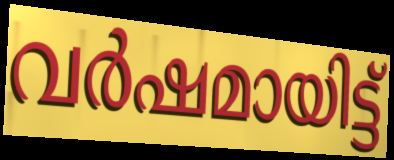
വർഷമായിട്ട്